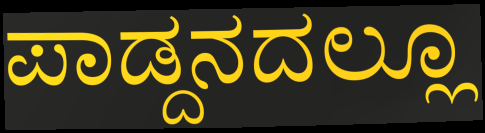
ಪಾಡ್ದನದಲ್ಲೂ